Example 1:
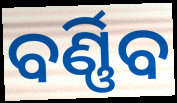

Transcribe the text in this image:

ବର୍ଣ୍ଣିବ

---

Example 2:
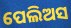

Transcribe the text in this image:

ପେଲିଅସ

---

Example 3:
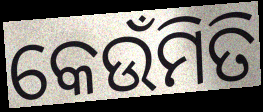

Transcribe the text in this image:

କେଉଁମିତି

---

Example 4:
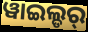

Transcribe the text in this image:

ୱାଇଲ୍ଡର୍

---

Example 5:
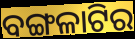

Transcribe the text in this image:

ବଙ୍ଗଳାଟିର